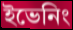
ইভেনিং